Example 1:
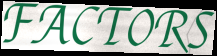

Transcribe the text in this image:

FACTORS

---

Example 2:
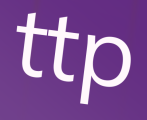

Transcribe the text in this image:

ttp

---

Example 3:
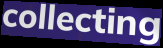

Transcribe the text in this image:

collecting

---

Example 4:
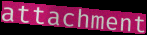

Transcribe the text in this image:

attachment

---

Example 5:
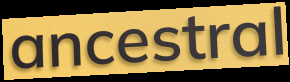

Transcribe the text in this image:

ancestral